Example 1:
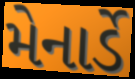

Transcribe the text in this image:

મેનાર્ડે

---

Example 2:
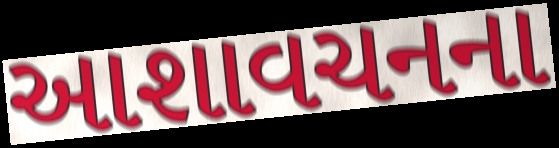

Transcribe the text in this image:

આશાવચનના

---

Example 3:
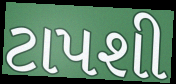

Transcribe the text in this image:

ટાપશી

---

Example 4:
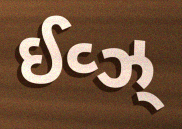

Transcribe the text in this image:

ઈવ્ઝ્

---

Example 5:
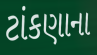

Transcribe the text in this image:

ટાંકણાના